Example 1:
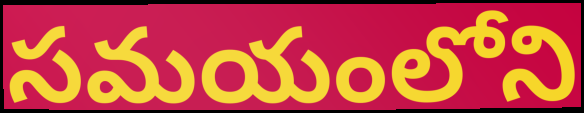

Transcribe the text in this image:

సమయంలోని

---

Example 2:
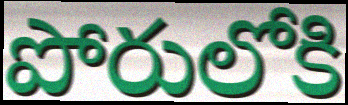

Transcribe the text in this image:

పోరులోకి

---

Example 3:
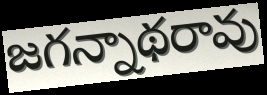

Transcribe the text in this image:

జగన్నాథరావు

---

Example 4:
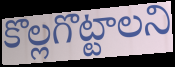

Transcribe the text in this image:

కొల్లగొట్టాలని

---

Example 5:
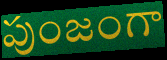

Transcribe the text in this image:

పుంజంగా